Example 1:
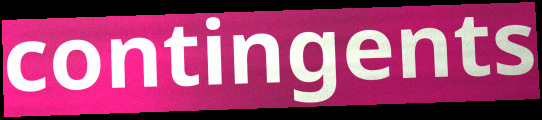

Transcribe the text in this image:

contingents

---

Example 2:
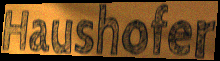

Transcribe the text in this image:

Haushofer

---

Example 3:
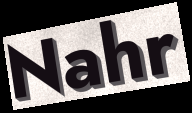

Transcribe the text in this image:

Nahr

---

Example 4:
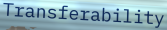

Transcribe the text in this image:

Transferability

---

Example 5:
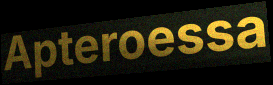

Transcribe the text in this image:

Apteroessa